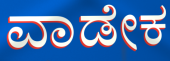
ವಾಡೇಕ